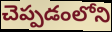
చెప్పడంలోని